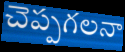
చెప్పగలనా